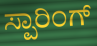
ಸ್ಪಾರಿಂಗ್